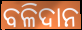
ବଳିଦାନ